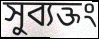
সুব্যক্তং